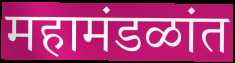
महामंडळांत